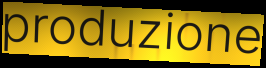
produzione